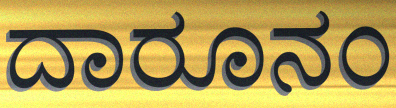
ದಾರೂನಂ